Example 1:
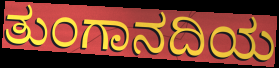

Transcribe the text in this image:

ತುಂಗಾನದಿಯ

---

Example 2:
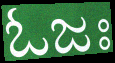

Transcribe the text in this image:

ಓಜಃ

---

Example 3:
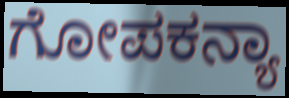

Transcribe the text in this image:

ಗೋಪಕನ್ಯಾ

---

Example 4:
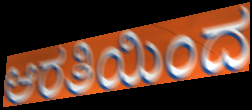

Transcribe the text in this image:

ಆರತಿಯಿಂದ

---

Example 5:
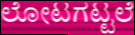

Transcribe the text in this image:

ಲೋಟಗಟ್ಟಲೆ